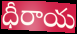
ధీరాయ